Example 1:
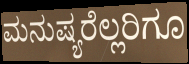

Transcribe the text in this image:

ಮನುಷ್ಯರೆಲ್ಲರಿಗೂ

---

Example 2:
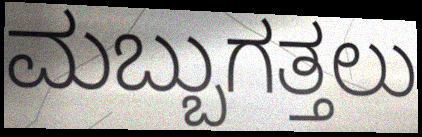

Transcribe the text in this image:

ಮಬ್ಬುಗತ್ತಲು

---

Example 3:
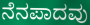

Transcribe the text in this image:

ನೆನಪಾದವು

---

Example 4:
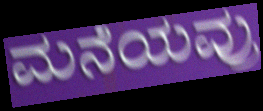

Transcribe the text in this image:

ಮನೆಯವ್ರು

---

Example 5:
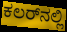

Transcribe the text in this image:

ಕಲರ್‌ನಲ್ಲಿ